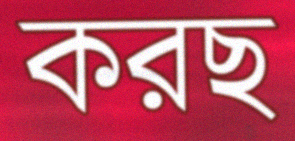
করছ